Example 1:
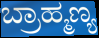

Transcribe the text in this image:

ಬ್ರಾಹ್ಮಣ್ಯ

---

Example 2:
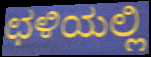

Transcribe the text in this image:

ಛಳಿಯಲ್ಲಿ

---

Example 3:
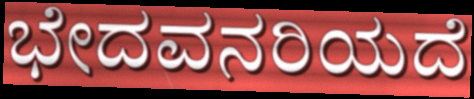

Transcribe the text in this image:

ಭೇದವನರಿಯದೆ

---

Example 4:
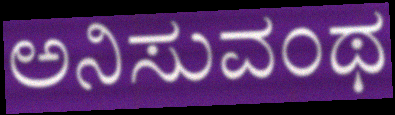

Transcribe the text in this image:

ಅನಿಸುವಂಥ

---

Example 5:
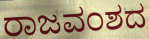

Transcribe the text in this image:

ರಾಜವಂಶದ